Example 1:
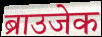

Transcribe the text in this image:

ब्राउजेक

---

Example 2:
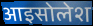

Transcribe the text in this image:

आइसोलेश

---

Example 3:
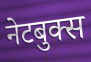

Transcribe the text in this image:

नेटबुक्स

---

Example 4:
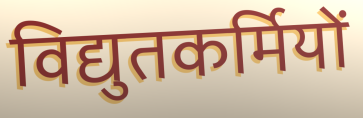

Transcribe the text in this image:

विद्युतकर्मियों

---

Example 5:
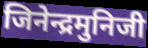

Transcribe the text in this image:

जिनेन्द्रमुनिजी